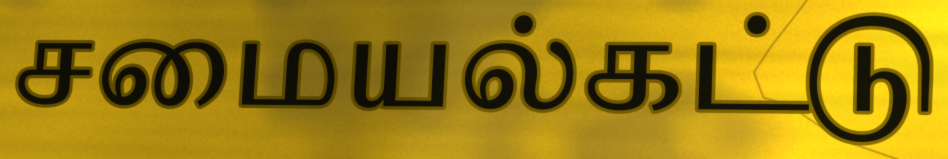
சமையல்கட்டு